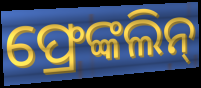
ଫ୍ରେଙ୍କଲିନ୍